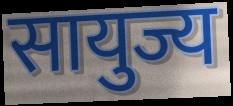
सायुज्य